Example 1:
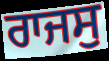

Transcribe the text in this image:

ਰਾਜਸੁ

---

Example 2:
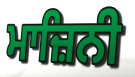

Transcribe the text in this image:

ਮਾਜ਼ਿਨੀ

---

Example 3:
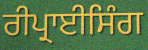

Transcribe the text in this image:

ਰੀਪ੍ਰਾਈਸਿੰਗ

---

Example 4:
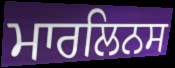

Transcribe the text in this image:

ਮਾਰਲਿਨਸ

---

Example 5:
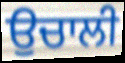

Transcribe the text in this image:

ਉਚਾਲੀ